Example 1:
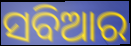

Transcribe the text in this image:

ସବିଆର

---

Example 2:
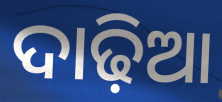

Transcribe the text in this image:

ଦାଢ଼ିଆ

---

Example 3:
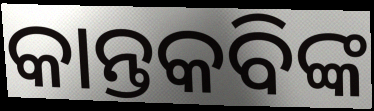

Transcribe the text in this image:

କାନ୍ତକବିଙ୍କ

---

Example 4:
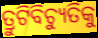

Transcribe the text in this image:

ତ୍ରୁଟିବିଚ୍ୟୁତିକୁ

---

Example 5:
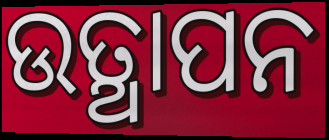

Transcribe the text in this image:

ଉତ୍ଥାପନ